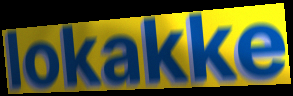
lokakke